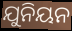
ଯୁନିୟନ